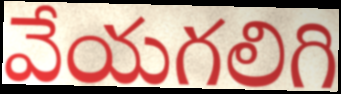
వేయగలిగి